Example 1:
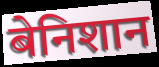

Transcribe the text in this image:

बेनिशान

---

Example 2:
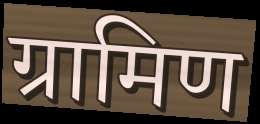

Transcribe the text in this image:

ग्रामिण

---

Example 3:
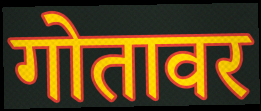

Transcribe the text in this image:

गोतावर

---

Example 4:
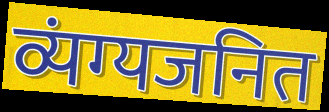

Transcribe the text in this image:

व्यंग्यजनित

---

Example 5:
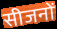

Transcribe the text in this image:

सीजनों